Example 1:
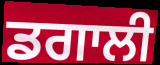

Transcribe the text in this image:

ਡਗਾਲੀ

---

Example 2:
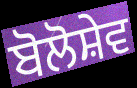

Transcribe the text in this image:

ਬੋਲੋਸ਼ੇਵ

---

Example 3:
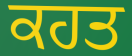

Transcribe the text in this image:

ਕਹਤ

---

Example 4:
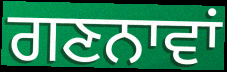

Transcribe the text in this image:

ਗਣਨਾਵਾਂ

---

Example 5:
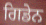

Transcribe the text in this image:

ਗਿਡੇਨ